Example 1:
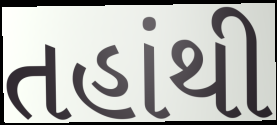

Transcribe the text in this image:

તહાંથી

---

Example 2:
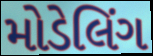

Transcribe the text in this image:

મોડેલિંગ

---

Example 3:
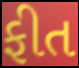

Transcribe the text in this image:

ફીત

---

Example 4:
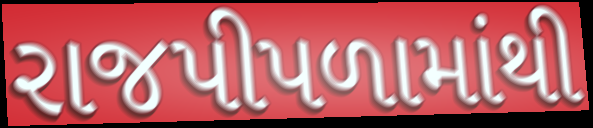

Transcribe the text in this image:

રાજપીપળામાંથી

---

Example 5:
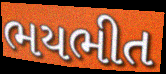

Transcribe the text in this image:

ભયભીત